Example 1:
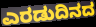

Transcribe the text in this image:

ಎರಡುದಿನದ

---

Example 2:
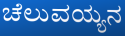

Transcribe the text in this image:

ಚೆಲುವಯ್ಯನ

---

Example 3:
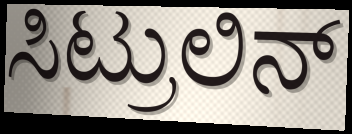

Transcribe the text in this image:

ಸಿಟ್ರುಲಿನ್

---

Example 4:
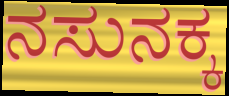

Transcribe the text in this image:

ನಸುನಕ್ಕ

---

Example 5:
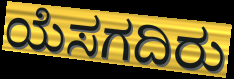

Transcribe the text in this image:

ಯೆಸಗದಿರು